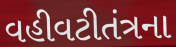
વહીવટીતંત્રના